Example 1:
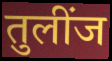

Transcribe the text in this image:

तुलींज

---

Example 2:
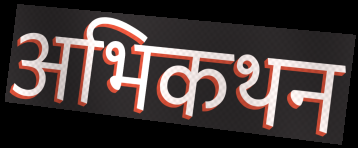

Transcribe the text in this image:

अभिकथन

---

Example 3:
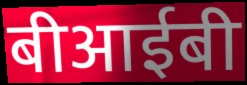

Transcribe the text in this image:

बीआईबी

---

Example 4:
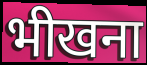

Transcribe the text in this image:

भीखना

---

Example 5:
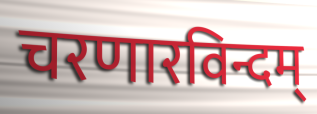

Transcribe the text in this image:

चरणारविन्दम्